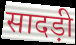
सादड़ी